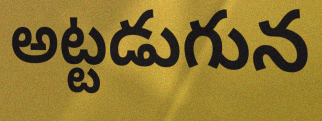
అట్టడుగున